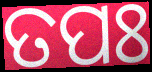
ତପଃ